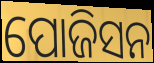
ପୋଜିସନ